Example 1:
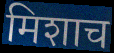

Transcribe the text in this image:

मिशाच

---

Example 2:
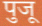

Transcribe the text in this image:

पुजू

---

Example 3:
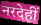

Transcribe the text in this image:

नरदेहीं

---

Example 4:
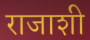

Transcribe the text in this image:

राजाशी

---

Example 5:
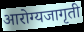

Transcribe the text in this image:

आरोग्यजागृती